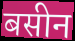
बसीन